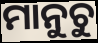
ମାନୁଚୁ